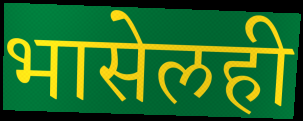
भासेलही